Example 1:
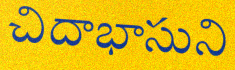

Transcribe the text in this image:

చిదాభాసుని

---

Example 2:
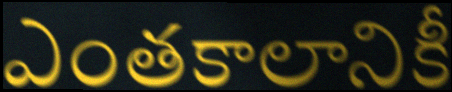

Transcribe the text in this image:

ఎంతకాలానికీ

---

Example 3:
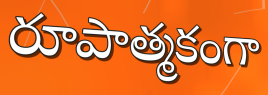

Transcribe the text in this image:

రూపాత్మకంగా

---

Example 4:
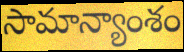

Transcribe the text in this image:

సామాన్యాంశం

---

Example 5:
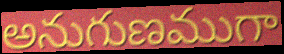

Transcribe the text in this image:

అనుగుణముగా